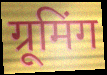
ग्रूमिंग